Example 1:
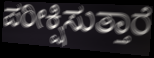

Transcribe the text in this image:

ಪರೀಕ್ಷಿಸುತ್ತಾರೆ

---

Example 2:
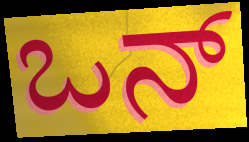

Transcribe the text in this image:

ಒನ್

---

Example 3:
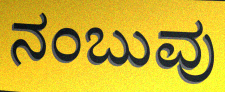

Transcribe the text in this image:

ನಂಬುವು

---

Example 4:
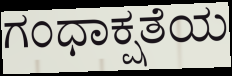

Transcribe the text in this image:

ಗಂಧಾಕ್ಷತೆಯ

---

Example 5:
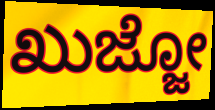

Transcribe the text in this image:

ಖುಜ್ಜೋ